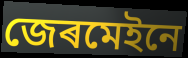
জেৰমেইনে